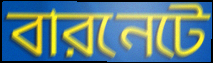
বারনেটে